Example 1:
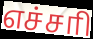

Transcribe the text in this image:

எச்சரி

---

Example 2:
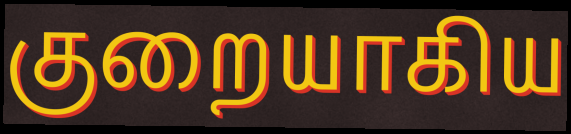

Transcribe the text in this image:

குறையாகிய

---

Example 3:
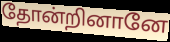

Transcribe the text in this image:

தோன்றினானே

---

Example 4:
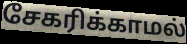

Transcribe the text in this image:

சேகரிக்காமல்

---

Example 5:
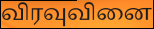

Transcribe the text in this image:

விரவுவினை